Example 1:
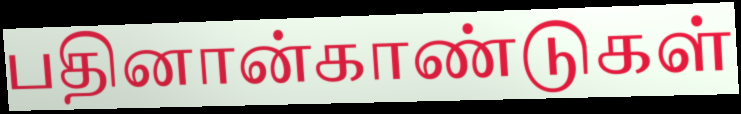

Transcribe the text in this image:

பதினான்காண்டுகள்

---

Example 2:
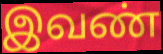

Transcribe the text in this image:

இவண்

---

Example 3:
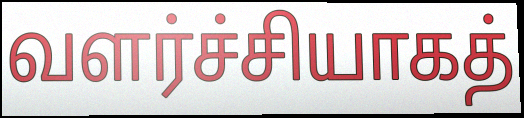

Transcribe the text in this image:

வளர்ச்சியாகத்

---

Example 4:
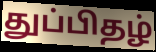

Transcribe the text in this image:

துப்பிதழ்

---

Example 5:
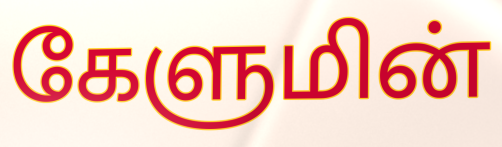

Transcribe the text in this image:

கேளுமின்